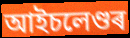
আইচলেণ্ডৰ